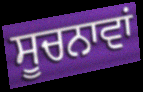
ਸੂਚਨਾਵਾਂ